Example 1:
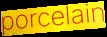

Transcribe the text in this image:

porcelain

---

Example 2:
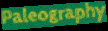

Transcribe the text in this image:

Paleography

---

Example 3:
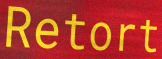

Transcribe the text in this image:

Retort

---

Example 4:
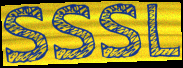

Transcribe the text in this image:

SSSL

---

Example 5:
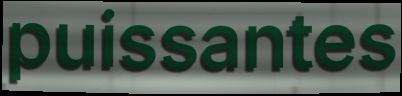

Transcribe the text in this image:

puissantes